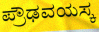
ಪ್ರೌಢವಯಸ್ಕ